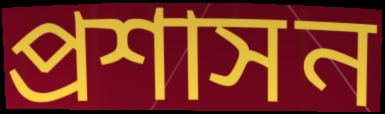
প্রশাসন